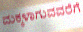
ಮಕ್ಕಳಾಗುವವರೆಗೆ